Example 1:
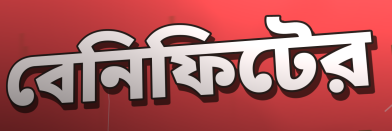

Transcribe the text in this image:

বেনিফিটের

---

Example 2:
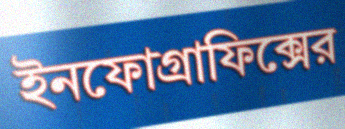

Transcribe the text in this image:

ইনফোগ্রাফিক্সের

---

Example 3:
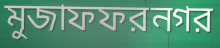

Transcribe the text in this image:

মুজাফফরনগর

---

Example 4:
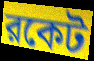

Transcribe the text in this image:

রকেট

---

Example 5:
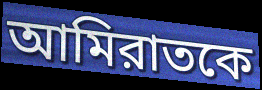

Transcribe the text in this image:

আমিরাতকে